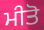
ਮੀਤੋ